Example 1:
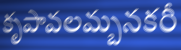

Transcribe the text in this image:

కృపావలమ్బనకరీ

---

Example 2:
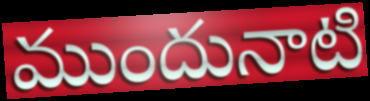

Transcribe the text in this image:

ముందునాటి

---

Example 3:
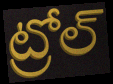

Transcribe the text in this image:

ట్రోల్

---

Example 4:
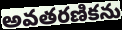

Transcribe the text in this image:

అవతరణికను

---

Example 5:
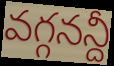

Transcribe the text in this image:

వగ్గనన్దీ